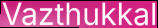
Vazthukkal